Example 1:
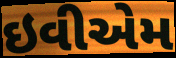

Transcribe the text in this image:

ઇવીએમ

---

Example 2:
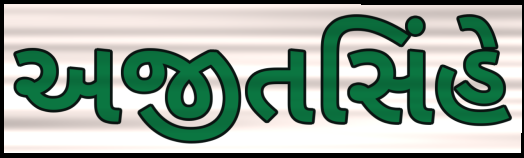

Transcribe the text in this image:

અજીતસિંહે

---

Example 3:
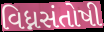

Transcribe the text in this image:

વિધ્નસંતોષી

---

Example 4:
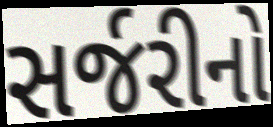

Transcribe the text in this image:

સર્જરીનો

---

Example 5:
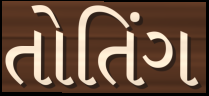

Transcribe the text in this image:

તોતિંગ